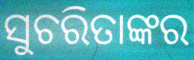
ସୁଚରିତାଙ୍କର